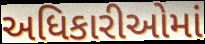
અધિકારીઓમાં